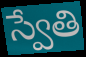
స్వేతి